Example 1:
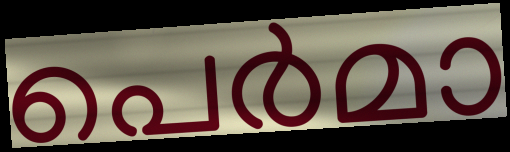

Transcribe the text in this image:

പെർമാ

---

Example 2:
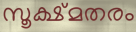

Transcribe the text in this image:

സൂക്ഷ്മതരം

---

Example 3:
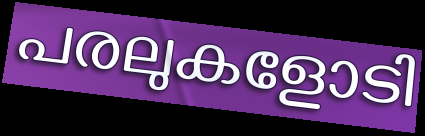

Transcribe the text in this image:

പരലുകളോടി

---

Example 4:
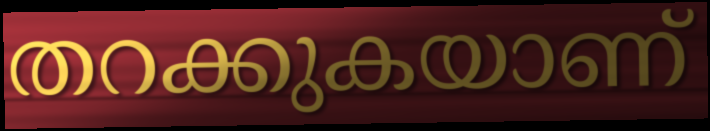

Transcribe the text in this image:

തറക്കുകയാണ്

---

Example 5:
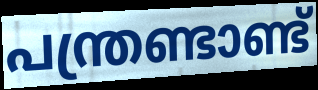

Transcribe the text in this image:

പന്ത്രണ്ടാണ്ട്